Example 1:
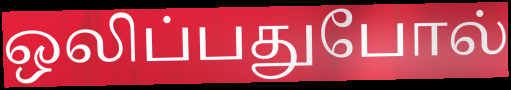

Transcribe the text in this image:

ஒலிப்பதுபோல்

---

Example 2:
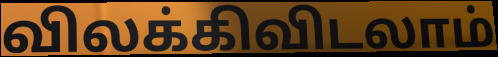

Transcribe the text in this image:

விலக்கிவிடலாம்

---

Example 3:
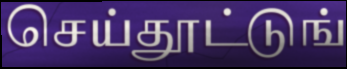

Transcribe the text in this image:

செய்தூட்டுங்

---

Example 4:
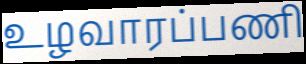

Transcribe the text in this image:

உழவாரப்பணி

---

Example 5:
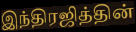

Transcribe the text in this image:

இந்திரஜித்தின்